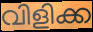
വിളിക്ക